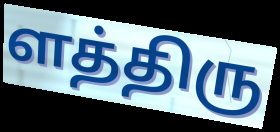
ளத்திரு